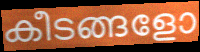
കീടങ്ങളോ